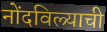
नोंदविल्याची